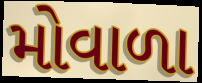
મોવાળા